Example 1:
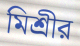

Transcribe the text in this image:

মিশ্রীর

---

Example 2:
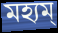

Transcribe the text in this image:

মহ্যম্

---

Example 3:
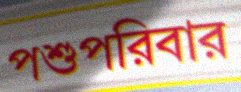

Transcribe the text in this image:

পশুপরিবার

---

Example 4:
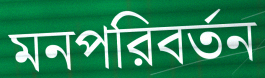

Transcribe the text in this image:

মনপরিবর্তন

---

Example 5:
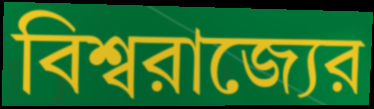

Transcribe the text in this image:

বিশ্বরাজ্যের